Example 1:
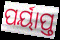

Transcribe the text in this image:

ପର୍ୟାପ୍ତ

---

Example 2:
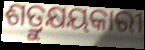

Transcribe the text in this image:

ଶତ୍ରୁକ୍ଷୟକାରୀ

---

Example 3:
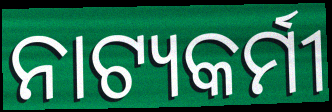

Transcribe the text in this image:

ନାଟ୍ୟକର୍ମୀ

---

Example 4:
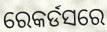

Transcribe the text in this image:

ରେକର୍ଡସରେ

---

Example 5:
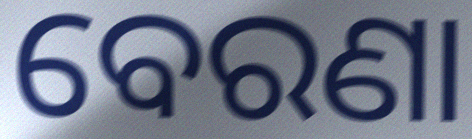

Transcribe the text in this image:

ବେରଣା